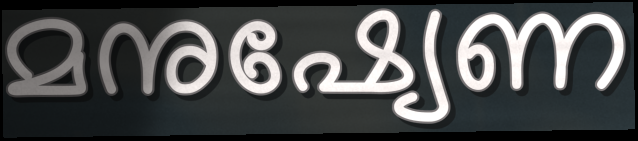
മനുഷ്യേണ